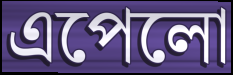
এপেলো